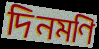
দিনমণি